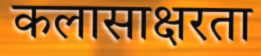
कलासाक्षरता